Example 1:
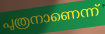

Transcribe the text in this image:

പുത്രനാണെന്ന്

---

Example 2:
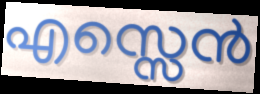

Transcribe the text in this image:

എസ്സെൻ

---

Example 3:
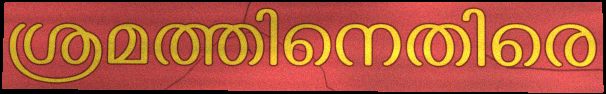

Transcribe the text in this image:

ശ്രമത്തിനെതിരെ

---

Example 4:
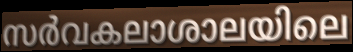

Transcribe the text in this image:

സർവകലാശാലയിലെ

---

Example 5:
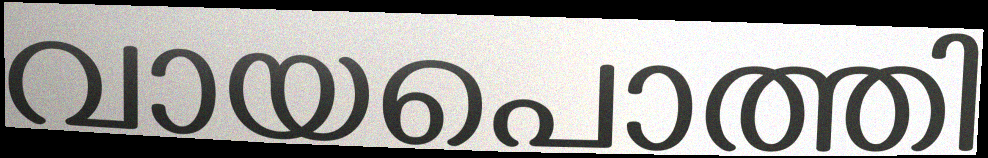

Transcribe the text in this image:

വായപൊത്തി